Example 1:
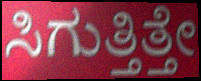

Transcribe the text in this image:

ಸಿಗುತ್ತಿತ್ತೇ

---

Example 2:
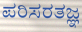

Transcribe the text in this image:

ಪರಿಸರತಜ್ಞ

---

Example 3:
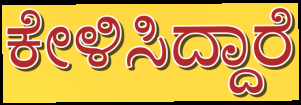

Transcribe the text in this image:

ಕೇಳಿಸಿದ್ದಾರೆ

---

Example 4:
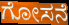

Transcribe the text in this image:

ಗೋಸನೆ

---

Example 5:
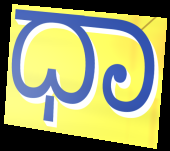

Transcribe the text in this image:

ಧಾ